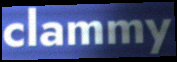
clammy